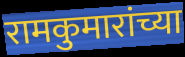
रामकुमारांच्या